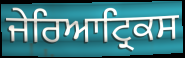
ਜੇਰਿਆਟ੍ਰਿਕਸ